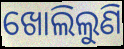
ଖୋଲିଲୁଣି